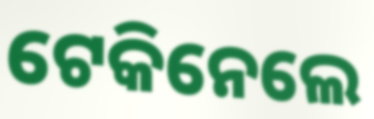
ଟେକିନେଲେ